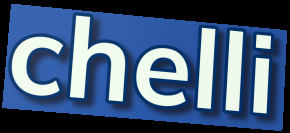
chelli